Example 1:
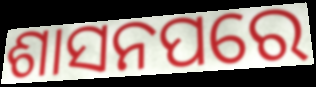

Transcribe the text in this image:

ଶାସନପରେ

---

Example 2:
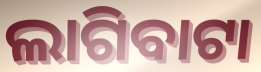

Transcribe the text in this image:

ଲାଗିବାଟା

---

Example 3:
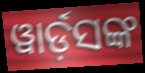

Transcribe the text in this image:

ୱାର୍ଡ଼ସଙ୍କ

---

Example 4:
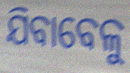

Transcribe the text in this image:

ଯିବାବେଳୁ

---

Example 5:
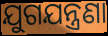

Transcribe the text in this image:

ଯୁଗଯନ୍ତ୍ରଣା